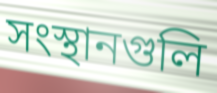
সংস্থানগুলি